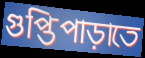
গুপ্তিপাড়াতে